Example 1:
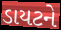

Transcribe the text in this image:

ડાયટને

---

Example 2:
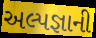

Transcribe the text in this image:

અલ્પજ્ઞાની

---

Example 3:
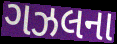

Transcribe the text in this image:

ગઝલના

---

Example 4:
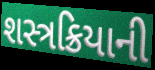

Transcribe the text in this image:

શસ્ત્રક્રિયાની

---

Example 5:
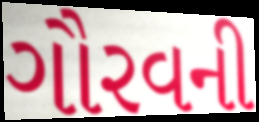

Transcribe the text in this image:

ગૌરવની